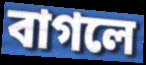
বাগলে